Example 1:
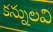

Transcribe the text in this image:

కన్నులవి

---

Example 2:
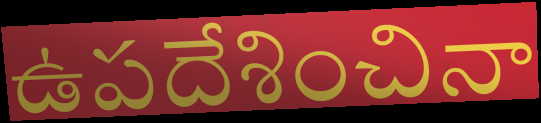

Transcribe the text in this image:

ఉపదేశించినా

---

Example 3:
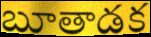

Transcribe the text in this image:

బూతాడక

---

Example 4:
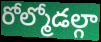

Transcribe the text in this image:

రోల్మోడల్గా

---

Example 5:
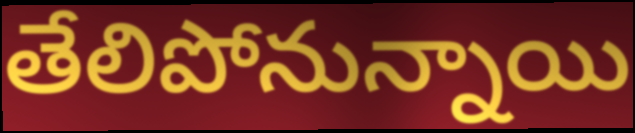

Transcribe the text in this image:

తేలిపోనున్నాయి